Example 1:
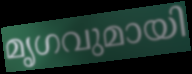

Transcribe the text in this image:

മൃഗവുമായി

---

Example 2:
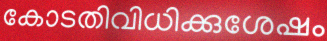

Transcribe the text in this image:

കോടതിവിധിക്കുശേഷം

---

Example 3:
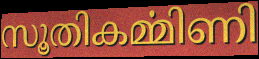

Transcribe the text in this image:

സൂതികൎമ്മിണി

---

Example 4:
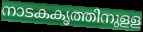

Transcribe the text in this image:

നാടകകൃത്തിനുളള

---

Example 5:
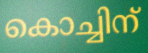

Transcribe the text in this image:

കൊച്ചിന്